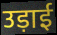
उड़ाई